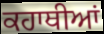
ਕਹਾਥੀਆਂ